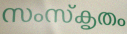
സംസ്‌കൃതം